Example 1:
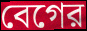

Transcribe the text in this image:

বেগের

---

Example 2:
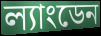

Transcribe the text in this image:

ল্যাংডেন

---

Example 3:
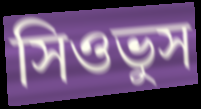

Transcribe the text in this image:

সিওভুস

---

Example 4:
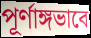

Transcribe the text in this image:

পূর্ণাঙ্গভাবে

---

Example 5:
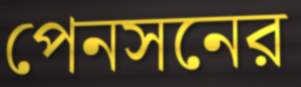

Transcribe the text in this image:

পেনসনের